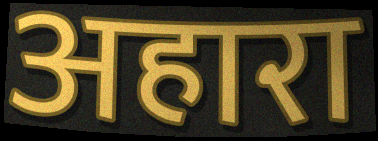
अहारा